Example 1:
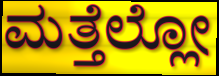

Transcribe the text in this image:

ಮತ್ತೆಲ್ಲೋ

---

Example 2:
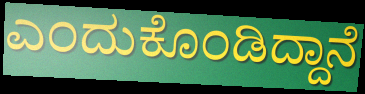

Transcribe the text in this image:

ಎಂದುಕೊಂಡಿದ್ದಾನೆ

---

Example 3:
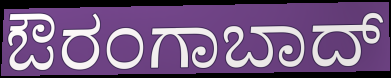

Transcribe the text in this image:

ಔರಂಗಾಬಾದ್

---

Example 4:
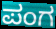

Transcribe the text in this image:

ಪಂಗ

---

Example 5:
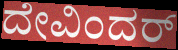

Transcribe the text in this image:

ದೇವಿಂದರ್